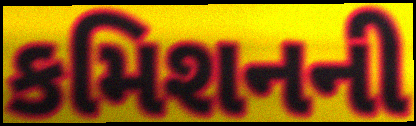
કમિશનની